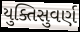
યુક્તિસુવર્ણ